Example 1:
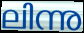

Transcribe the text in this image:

ലിന്നു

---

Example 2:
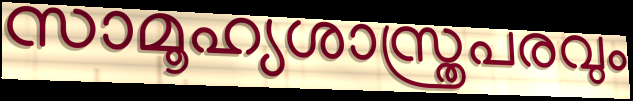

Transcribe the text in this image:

സാമൂഹ്യശാസ്ത്രപരവും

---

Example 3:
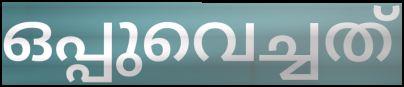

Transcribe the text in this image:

ഒപ്പുവെച്ചത്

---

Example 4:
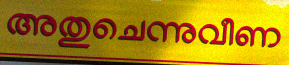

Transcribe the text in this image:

അതുചെന്നുവീണ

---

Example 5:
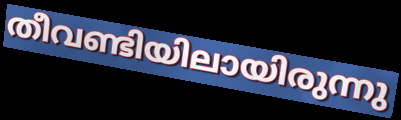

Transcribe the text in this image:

തീവണ്ടിയിലായിരുന്നു